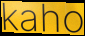
kaho